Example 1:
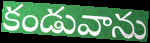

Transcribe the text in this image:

కండువాను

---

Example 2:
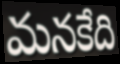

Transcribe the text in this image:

మనకేది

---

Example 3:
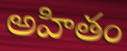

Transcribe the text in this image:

అహితం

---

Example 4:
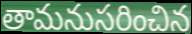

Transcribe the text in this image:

తామనుసరించిన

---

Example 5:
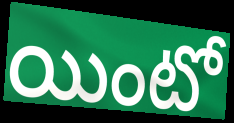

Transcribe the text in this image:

యింటో